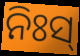
ନିଃସ୍